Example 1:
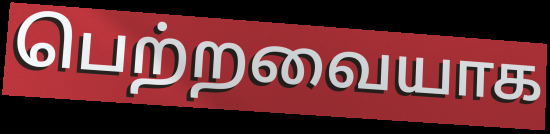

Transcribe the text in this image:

பெற்றவையாக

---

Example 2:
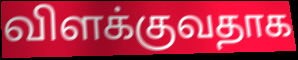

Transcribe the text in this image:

விளக்குவதாக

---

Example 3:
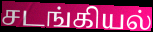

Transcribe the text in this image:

சடங்கியல்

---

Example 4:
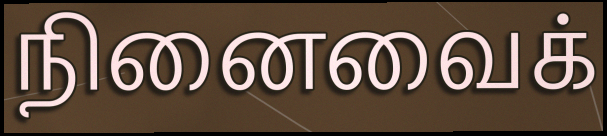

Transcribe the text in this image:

நினைவைக்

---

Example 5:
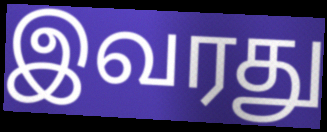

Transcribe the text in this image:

இவரது